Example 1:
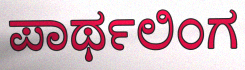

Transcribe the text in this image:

ಪಾರ್ಥಲಿಂಗ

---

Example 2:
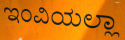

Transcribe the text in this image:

ಇಂವಿಯಲ್ಲಾ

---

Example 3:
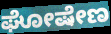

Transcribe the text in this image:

ಘೋಷೇಣ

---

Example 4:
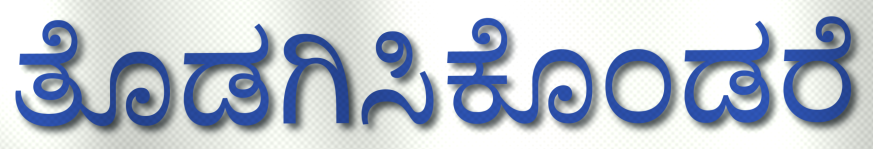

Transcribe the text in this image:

ತೊಡಗಿಸಿಕೊಂಡರೆ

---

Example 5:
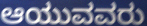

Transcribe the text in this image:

ಆಯುವವರು